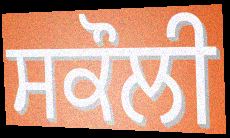
ਸਕੌਲੀ